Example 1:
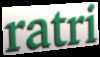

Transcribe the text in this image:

ratri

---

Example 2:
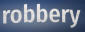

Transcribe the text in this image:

robbery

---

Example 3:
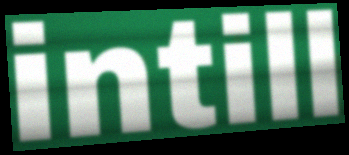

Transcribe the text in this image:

intill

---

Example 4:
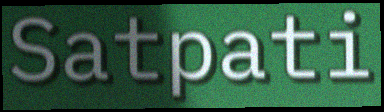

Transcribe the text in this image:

Satpati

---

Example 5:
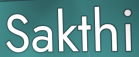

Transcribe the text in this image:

Sakthi